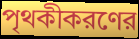
পৃথকীকরণের